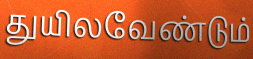
துயிலவேண்டும்